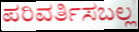
ಪರಿವರ್ತಿಸಬಲ್ಲ